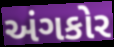
અંગકોર